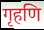
गृहणि